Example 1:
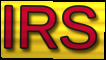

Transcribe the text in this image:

IRS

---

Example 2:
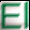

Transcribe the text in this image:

El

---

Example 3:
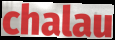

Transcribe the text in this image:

chalau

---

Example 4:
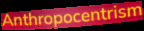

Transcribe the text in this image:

Anthropocentrism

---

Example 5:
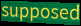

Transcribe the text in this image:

supposed